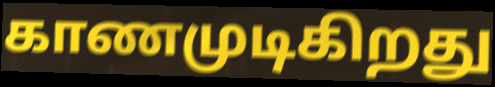
காணமுடிகிறது